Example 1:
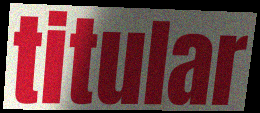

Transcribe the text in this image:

titular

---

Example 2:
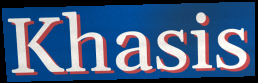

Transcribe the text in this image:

Khasis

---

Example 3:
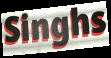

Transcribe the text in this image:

Singhs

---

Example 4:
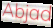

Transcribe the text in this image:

Abjad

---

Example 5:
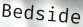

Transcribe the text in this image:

Bedside